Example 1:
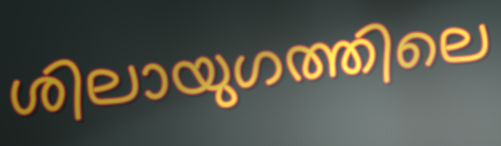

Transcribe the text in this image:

ശിലായുഗത്തിലെ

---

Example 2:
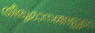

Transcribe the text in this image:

തീരുമാനങ്ങളുടെ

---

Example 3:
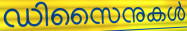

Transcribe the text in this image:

ഡിസൈനുകൾ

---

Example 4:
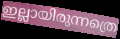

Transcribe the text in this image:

ഇല്ലായിരുന്നത്രെ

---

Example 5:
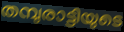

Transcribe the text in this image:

തമ്പുരാട്ടിയുടെ